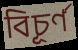
বিচূৰ্ণ